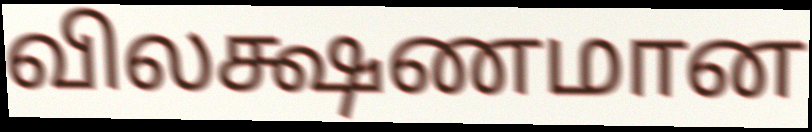
விலக்ஷணமான